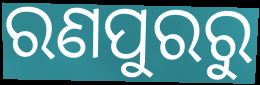
ରଣପୁରରୁ